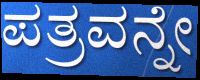
ಪತ್ರವನ್ನೇ